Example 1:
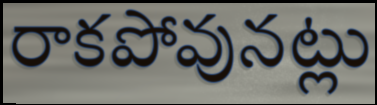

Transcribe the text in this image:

రాకపోవునట్లు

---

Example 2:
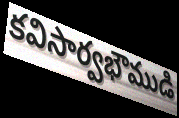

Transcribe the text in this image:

కవిసార్వభౌముడి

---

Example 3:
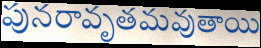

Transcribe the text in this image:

పునరావృతమవుతాయి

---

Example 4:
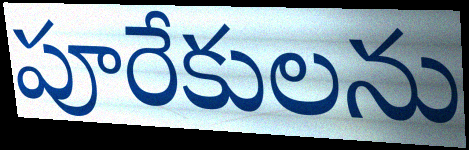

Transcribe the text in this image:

పూరేకులను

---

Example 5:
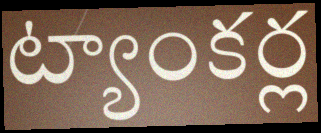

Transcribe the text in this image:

ట్యాంకర్ల